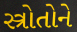
સ્ત્રોતોને